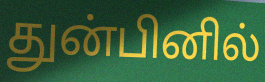
துன்பினில்